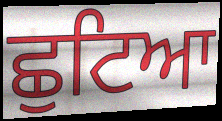
ਛੁਟਿਆ